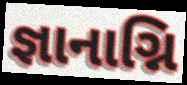
જ્ઞાનાગ્નિ